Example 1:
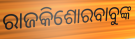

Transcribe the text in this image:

ରାଜକିଶୋରବାବୁଙ୍କ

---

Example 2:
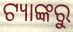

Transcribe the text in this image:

ଟ୍ୟାଙ୍କରୁ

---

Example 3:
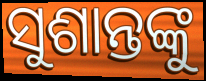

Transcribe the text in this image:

ସୁଶାନ୍ତଙ୍କୁ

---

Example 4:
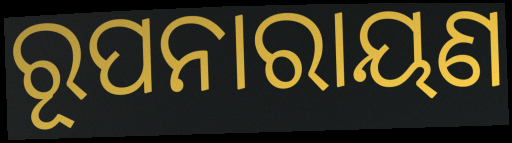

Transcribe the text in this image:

ରୂପନାରାୟଣ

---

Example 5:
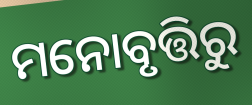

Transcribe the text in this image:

ମନୋବୃତ୍ତିରୁ